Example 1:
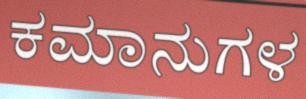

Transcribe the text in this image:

ಕಮಾನುಗಳ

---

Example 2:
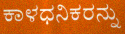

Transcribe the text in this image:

ಕಾಳಧನಿಕರನ್ನು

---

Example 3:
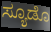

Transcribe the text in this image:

ಸ್ಯೂಡೊ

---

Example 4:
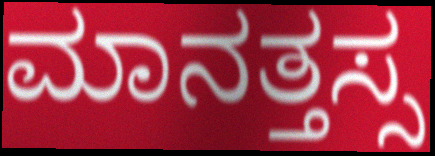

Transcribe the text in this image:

ಮಾನತ್ತಸ್ಸ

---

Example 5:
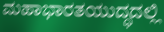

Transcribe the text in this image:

ಮಹಾಭಾರತಯುದ್ಧದಲ್ಲಿ